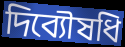
দিব্যৌষধি